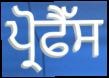
ਪ੍ਰੋਫੈੱਸ